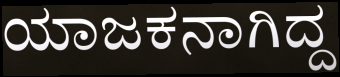
ಯಾಜಕನಾಗಿದ್ದ